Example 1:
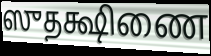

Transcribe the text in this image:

ஸுதக்ஷிணை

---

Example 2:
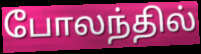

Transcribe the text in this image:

போலந்தில்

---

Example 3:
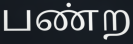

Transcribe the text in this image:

பண்ற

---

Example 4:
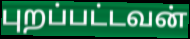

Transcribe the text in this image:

புறப்பட்டவன்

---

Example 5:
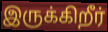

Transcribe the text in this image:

இருக்கிறீர்